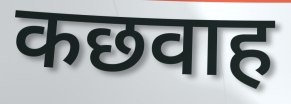
कछवाह